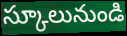
స్కూలునుండి